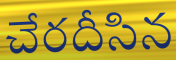
చేరదీసిన